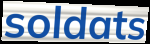
soldats